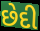
છેદી